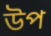
উপ